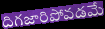
దిగజారిపోవడమే